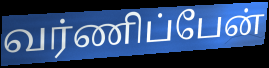
வர்ணிப்பேன்